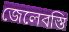
জেলেবস্তি